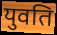
युवति